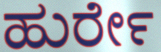
ಹುರ್ರೇ